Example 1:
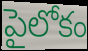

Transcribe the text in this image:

పైలోకం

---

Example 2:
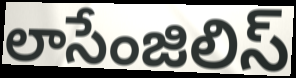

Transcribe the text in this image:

లాసేంజిలిస్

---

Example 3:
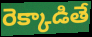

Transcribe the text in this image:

రెక్కాడితే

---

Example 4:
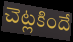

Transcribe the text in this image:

చెట్లకిందే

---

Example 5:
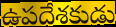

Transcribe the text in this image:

ఉపదేశకుడు